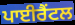
ਪਾਈਰੈਂਟਲ